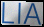
LIA